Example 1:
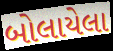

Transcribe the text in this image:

બોલાયેલા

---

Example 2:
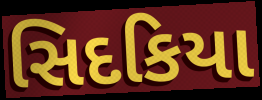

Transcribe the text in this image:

સિદકિયા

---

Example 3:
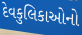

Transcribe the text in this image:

દેવકુલિકાઓનો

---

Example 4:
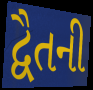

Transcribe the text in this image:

દ્વૈતની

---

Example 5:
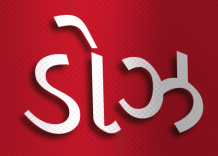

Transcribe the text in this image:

ડોઝ